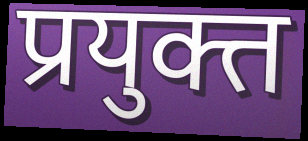
प्रयुक्त